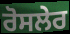
ਰੋਸਲੇਰ